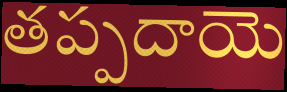
తప్పదాయె